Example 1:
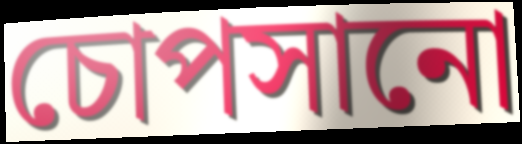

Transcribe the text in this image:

চোপসানো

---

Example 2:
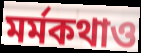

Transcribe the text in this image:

মর্মকথাও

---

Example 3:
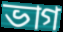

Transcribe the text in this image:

ভাগ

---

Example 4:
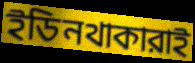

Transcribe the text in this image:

ইডিনথাকারাই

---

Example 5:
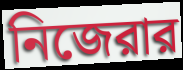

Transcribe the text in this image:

নিজেরার